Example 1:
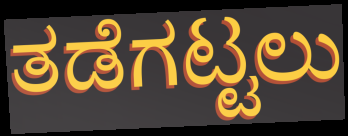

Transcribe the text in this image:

ತಡೆಗಟ್ಟಲು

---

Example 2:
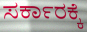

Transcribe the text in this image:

ಸರ್ಕಾರಕ್ಕೆ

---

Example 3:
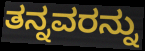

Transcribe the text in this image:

ತನ್ನವರನ್ನು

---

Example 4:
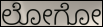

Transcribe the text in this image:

ಲೋಗೋ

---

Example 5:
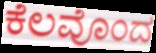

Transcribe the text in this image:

ಕೆಲವೊಂದ